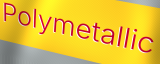
Polymetallic